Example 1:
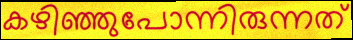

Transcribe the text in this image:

കഴിഞ്ഞുപോന്നിരുന്നത്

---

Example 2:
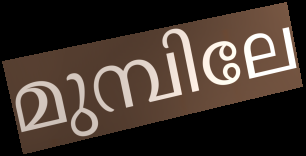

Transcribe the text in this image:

മുമ്പിലേ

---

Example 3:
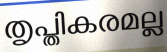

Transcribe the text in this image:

തൃപ്തികരമല്ല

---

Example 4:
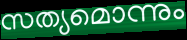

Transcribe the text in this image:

സത്യമൊന്നും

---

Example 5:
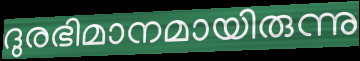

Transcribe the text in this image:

ദുരഭിമാനമായിരുന്നു